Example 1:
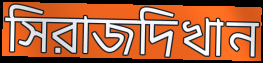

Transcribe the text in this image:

সিরাজদিখান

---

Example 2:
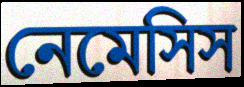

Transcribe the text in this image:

নেমেসিস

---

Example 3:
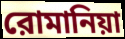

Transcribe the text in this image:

রোমানিয়া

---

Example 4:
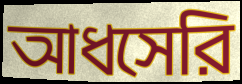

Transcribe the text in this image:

আধসেরি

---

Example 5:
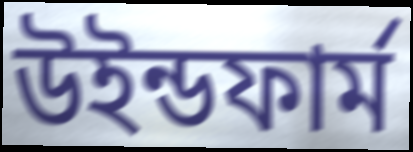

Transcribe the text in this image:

উইন্ডফার্ম